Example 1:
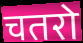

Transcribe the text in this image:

चतरो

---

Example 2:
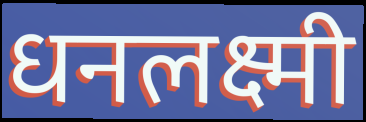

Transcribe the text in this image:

धनलक्ष्मी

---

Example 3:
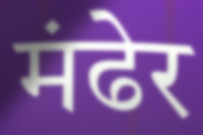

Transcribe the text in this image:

मंढेर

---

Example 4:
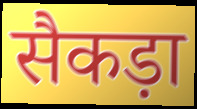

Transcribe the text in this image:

सैकड़ा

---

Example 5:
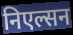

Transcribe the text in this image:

निएल्सन